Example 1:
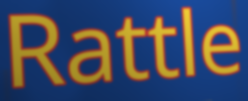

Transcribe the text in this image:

Rattle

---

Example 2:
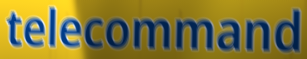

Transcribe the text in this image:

telecommand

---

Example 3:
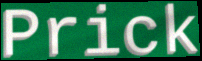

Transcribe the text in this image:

Prick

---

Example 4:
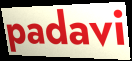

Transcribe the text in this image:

padavi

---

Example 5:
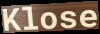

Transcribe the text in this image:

Klose